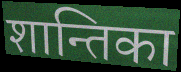
शान्तिका